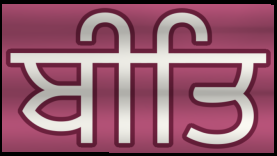
ਬੀਤਿ